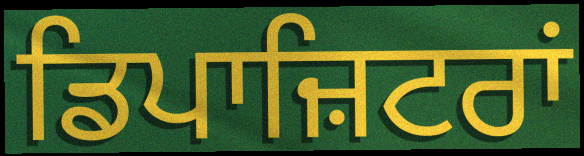
ਡਿਪਾਜ਼ਿਟਰਾਂ